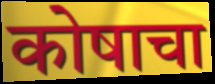
कोषाचा